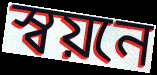
স্বয়নে